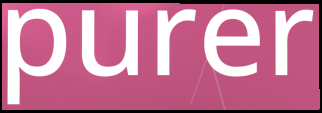
purer